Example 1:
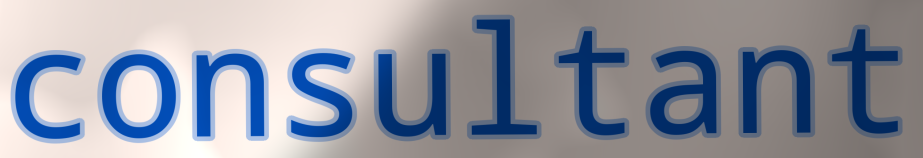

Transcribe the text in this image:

consultant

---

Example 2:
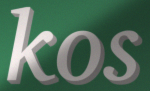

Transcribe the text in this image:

kos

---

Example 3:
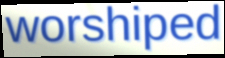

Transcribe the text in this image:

worshiped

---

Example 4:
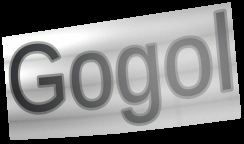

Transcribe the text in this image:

Gogol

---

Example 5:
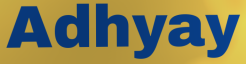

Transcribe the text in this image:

Adhyay